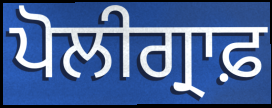
ਪੋਲੀਗ੍ਰਾਫ਼